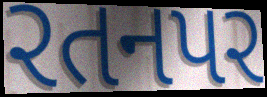
રતનપર